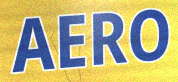
AERO